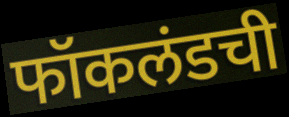
फॉकलंडची